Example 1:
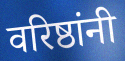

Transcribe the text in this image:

वरिष्ठांनी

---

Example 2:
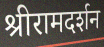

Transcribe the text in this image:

श्रीरामदर्शन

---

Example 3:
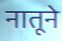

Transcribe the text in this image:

नातूने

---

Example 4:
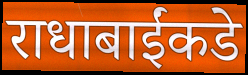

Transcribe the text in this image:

राधाबाईंकडे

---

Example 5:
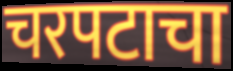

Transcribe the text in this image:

चरपटाचा